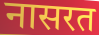
नासरत